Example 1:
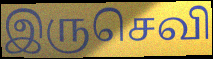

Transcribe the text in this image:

இருசெவி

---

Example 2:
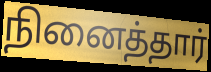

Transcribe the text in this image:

நினைத்தார்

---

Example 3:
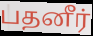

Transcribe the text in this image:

பதனீர்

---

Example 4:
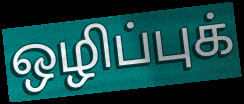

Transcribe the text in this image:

ஒழிப்புக்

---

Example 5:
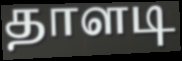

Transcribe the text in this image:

தாளடி